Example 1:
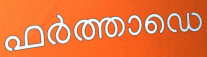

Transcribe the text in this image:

ഫർത്താഡെ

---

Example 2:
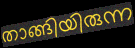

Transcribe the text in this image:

താങ്ങിയിരുന്ന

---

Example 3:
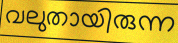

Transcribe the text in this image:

വലുതായിരുന്ന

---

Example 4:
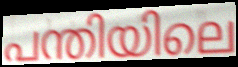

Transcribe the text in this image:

പന്തിയിലെ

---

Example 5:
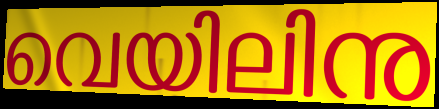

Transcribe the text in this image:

വെയിലിനു